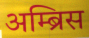
अम्ब्रिस